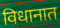
विधानात